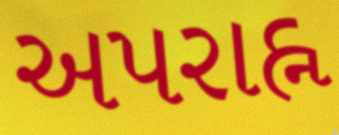
અપરાહ્ન